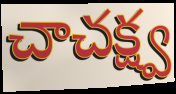
చాచక్ష్వ